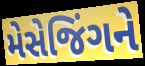
મેસેજિંગને